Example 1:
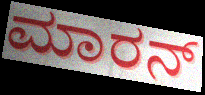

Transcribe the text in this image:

ಮಾರನ್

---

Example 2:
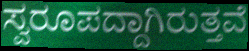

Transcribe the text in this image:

ಸ್ವರೂಪದ್ದಾಗಿರುತ್ತವೆ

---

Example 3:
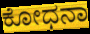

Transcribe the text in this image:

ಕೋಧನಾ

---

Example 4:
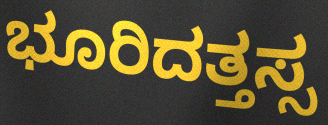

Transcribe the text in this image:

ಭೂರಿದತ್ತಸ್ಸ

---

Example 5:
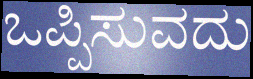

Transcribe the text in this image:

ಒಪ್ಪಿಸುವದು